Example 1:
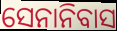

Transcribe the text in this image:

ସେନାନିବାସ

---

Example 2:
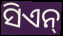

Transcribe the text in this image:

ସିଏନ୍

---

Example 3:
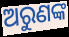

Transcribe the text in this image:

ଅରୁଣଙ୍କ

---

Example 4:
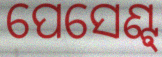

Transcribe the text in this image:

ପେସେଣ୍ଟ୍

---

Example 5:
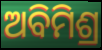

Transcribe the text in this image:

ଅବିମିଶ୍ର